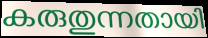
കരുതുന്നതായി